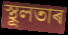
স্থূলতাৰ